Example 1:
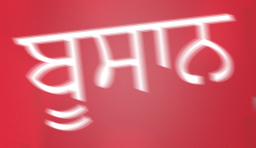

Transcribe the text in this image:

ਬੂਸਾਨ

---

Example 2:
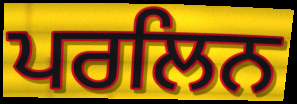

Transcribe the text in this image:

ਪਰਲਿਨ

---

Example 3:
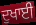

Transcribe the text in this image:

ਦੁਖਾਈ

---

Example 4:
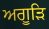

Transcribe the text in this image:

ਅਗੂੜਿ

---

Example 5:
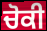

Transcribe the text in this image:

ਚੋਕੀ